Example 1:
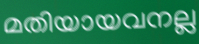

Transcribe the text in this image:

മതിയായവനല്ല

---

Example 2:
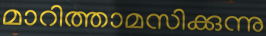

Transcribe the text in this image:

മാറിത്താമസിക്കുന്നു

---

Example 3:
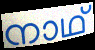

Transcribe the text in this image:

നാഥ്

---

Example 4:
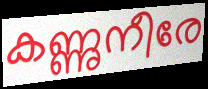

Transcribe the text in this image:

കണ്ണുനീരേ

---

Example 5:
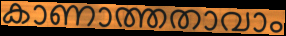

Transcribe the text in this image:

കാണാത്തതാവാം